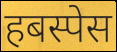
हबस्पेस